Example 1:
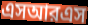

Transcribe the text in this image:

এসআরএস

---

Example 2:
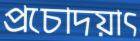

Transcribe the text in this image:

প্রচোদয়াৎ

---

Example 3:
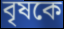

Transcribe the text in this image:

বৃষকে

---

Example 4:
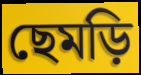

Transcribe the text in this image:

ছেমড়ি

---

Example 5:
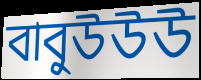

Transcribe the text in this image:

বাবুউউউ